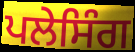
ਪਲੇਸਿੰਗ